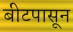
बीटपासून